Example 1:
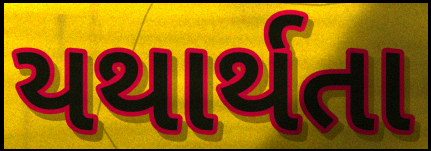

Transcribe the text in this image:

યથાર્થતા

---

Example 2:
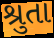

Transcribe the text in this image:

શ્રુતા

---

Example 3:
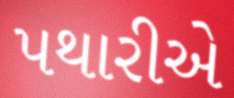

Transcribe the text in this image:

પથારીએ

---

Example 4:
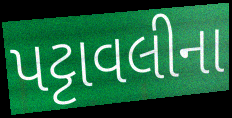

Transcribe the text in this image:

પટ્ટાવલીના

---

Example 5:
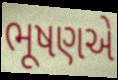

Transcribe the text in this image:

ભૂષણએ